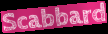
Scabbard